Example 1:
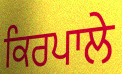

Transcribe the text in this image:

ਕਿਰਪਾਲੇ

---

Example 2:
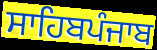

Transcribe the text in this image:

ਸਾਹਿਬਪੰਜਾਬ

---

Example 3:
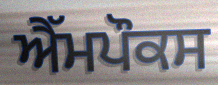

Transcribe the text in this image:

ਐੱਮਪੌਕਸ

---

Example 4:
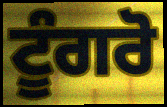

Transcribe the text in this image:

ਟੂੰਗਰੋ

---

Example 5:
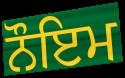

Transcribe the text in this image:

ਨੌਇਮ